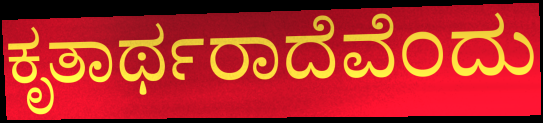
ಕೃತಾರ್ಥರಾದೆವೆಂದು